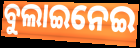
ବୁଲାଇନେଇ